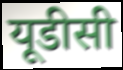
यूडीसी